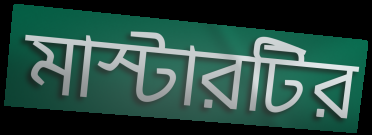
মাস্টারটির